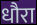
धौरा